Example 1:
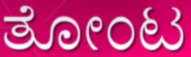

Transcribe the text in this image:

ತೋಂಟ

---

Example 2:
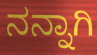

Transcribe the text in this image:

ನನ್ನಾಗಿ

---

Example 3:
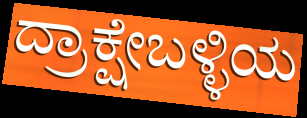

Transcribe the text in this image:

ದ್ರಾಕ್ಷೇಬಳ್ಳಿಯ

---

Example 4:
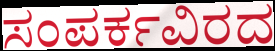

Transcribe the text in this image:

ಸಂಪರ್ಕವಿರದ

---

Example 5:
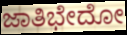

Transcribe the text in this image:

ಜಾತಿಭೇದೋ